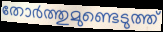
തോർത്തുമുണ്ടെടുത്ത്